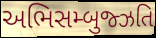
અભિસમ્બુજ્ઝતિ